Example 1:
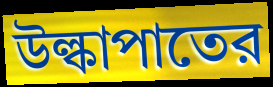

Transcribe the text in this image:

উল্কাপাতের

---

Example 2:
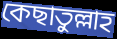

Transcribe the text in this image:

কেছাতুল্লাহ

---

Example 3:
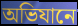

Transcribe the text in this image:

অভিযানে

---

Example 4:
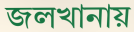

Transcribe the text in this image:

জলখানায়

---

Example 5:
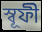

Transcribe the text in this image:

স্বূফী